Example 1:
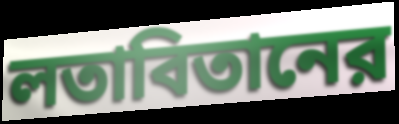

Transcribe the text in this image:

লতাবিতানের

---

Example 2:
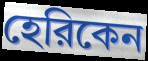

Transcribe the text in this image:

হেরিকেন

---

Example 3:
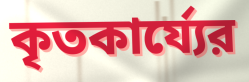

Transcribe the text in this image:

কৃতকার্য্যের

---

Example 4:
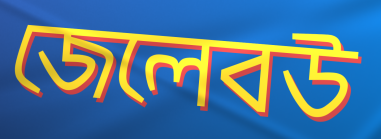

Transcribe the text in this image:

জেলেবউ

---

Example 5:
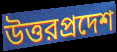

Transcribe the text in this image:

উত্তরপ্রদেশ